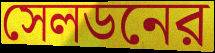
সেলডনের